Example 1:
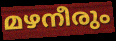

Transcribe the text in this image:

മഴനീരും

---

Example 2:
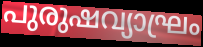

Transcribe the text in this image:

പുരുഷവ്യാഘ്രം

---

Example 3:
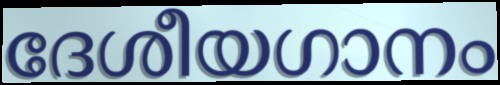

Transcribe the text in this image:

ദേശീയഗാനം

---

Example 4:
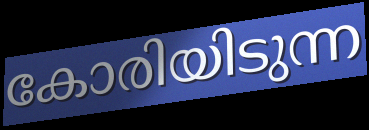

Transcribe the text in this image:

കോരിയിടുന്ന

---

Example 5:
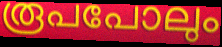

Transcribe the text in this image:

രൂപപോലും